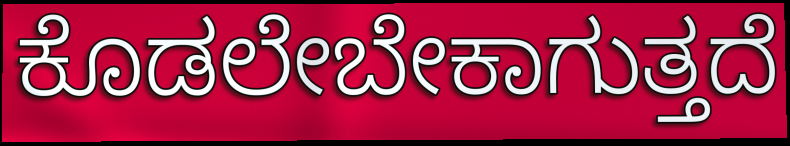
ಕೊಡಲೇಬೇಕಾಗುತ್ತದೆ